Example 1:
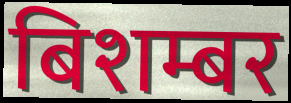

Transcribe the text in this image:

बिशम्बर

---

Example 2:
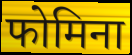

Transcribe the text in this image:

फोमिना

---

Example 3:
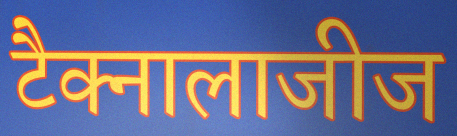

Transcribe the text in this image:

टैक्नालाजीज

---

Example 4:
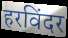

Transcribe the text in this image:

हरविंदर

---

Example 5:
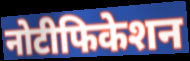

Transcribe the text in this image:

नोटीफिकेशन